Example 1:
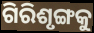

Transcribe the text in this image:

ଗିରିଶୃଙ୍ଗକୁ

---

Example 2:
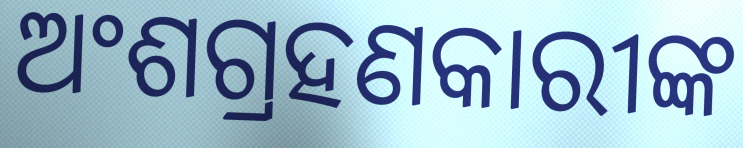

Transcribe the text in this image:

ଅଂଶଗ୍ରହଣକାରୀଙ୍କ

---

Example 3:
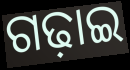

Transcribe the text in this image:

ଗଢ଼ାଇ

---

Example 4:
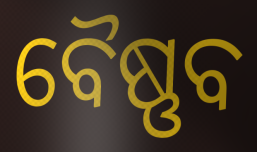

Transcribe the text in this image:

ବୈଷ୍ଣବ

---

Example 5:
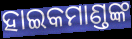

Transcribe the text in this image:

ହାଇକମାଣ୍ଡଙ୍କ